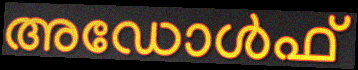
അഡോൾഫ്